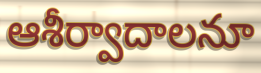
ఆశీర్వాదాలనూ